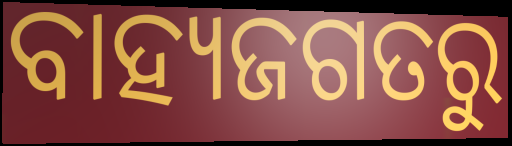
ବାହ୍ୟଜଗତରୁ